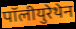
पॉलीयुरेथेन